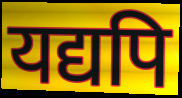
यद्यपि